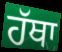
ਹੱਥਾ